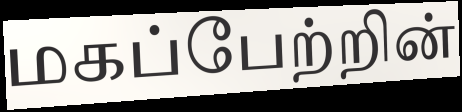
மகப்பேற்றின்